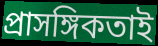
প্রাসঙ্গিকতাই